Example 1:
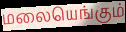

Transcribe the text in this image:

மலையெங்கும்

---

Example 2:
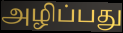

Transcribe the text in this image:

அழிப்பது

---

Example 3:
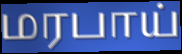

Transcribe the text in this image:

மரபாய்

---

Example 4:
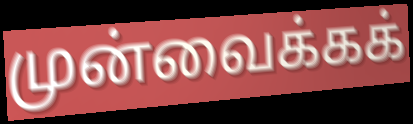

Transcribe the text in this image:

முன்வைக்கக்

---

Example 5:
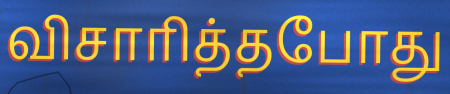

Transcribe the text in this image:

விசாரித்தபோது